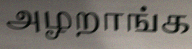
அழறாங்க